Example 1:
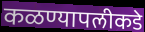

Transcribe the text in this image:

कळण्यापलीकडे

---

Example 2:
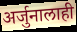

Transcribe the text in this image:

अर्जुनालाही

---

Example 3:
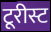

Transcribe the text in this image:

टूरीस्ट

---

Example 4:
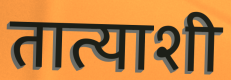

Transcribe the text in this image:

तात्याशी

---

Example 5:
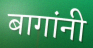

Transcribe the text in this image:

बागांनी